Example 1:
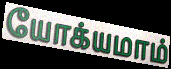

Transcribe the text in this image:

யோக்யமாம்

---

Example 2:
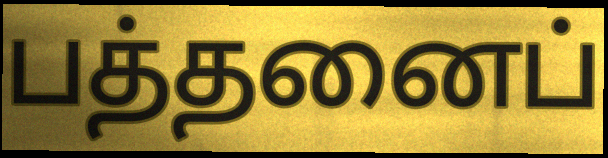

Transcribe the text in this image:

பத்தனைப்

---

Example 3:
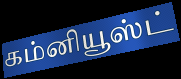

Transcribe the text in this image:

கம்னியூஸ்ட்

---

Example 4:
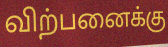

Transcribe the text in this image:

விற்பனைக்கு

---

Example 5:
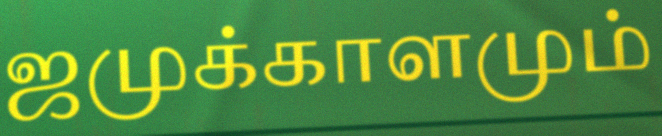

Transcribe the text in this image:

ஜமுக்காளமும்